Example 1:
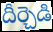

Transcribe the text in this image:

దీర్చెడి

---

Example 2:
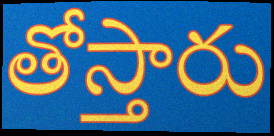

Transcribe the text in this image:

తోస్తారు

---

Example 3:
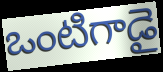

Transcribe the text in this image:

ఒంటిగాడై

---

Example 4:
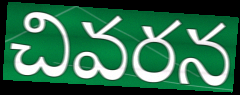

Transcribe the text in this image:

చివరన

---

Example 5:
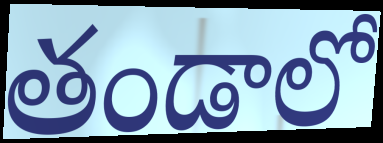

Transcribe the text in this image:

తండాలో